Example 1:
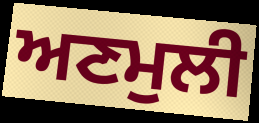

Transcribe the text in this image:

ਅਣਮੁਲੀ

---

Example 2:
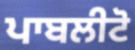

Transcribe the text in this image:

ਪਾਬਲੀਟੋ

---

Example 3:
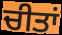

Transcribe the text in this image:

ਚੀਤਾਂ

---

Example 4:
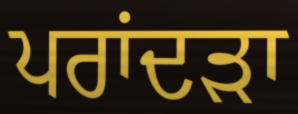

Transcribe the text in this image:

ਪਰਾਂਦੜਾ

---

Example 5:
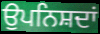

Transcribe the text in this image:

ਉਪਨਿਸ਼ਦਾਂ